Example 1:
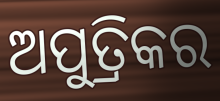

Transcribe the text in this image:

ଅପୁତ୍ରିକର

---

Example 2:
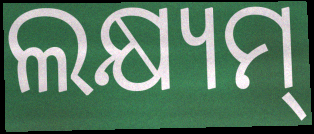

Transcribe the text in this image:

ଲକ୍ଷ୍ୟମ୍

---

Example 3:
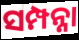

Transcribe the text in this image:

ସମ୍ପନ୍ନା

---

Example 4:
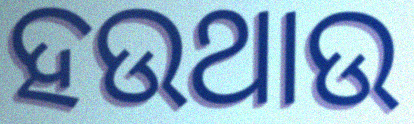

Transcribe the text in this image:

ହଉଥାଉ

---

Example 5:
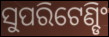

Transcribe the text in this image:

ସୁପରିଟେଣ୍ଡିଂ